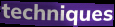
techniques